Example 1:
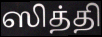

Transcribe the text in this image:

ஸித்தி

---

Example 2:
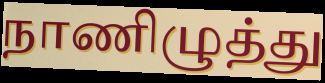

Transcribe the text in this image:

நாணிழுத்து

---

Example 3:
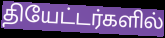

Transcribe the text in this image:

தியேட்டர்களில்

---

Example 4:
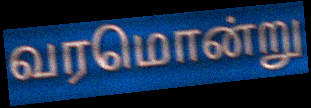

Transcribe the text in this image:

வரமொன்று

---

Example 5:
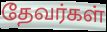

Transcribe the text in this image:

தேவர்கள்